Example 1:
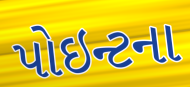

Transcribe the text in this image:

પોઇન્ટના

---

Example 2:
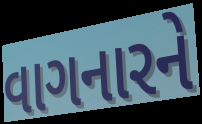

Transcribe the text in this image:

વાગનારને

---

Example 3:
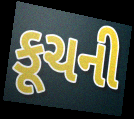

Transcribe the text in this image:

કૂચની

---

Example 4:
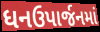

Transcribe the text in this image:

ધનઉપાર્જનમાં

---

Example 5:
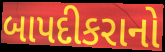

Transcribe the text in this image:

બાપદીકરાનો